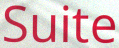
Suite